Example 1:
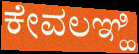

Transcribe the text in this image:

ಕೇವಲಞ್ಹಿ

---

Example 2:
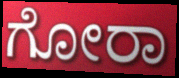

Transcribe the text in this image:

ಗೋರಾ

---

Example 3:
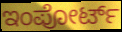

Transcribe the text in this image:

ಇಂಪೋರ್ಟ್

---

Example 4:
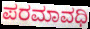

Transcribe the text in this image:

ಪರಮಾವಧಿ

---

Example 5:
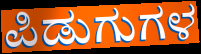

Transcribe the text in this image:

ಪಿಡುಗುಗಳ